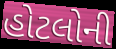
હોટલોની